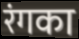
रंगका